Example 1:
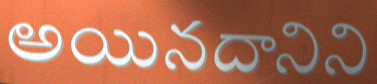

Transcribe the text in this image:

అయినదానిని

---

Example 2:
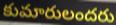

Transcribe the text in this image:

కుమారులందరు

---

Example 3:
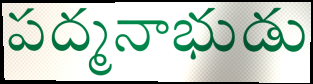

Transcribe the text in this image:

పద్మనాభుడు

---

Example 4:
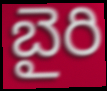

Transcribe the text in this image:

బైరి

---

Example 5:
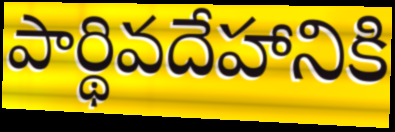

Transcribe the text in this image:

పార్థివదేహానికి